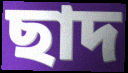
ছাদ